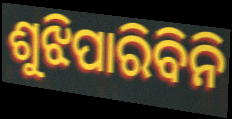
ଶୁଝିପାରିବିନି